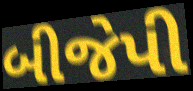
બીજેપી